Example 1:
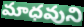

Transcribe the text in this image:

మాధవుని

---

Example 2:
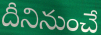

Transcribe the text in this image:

దీనినుంచే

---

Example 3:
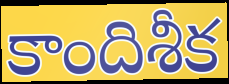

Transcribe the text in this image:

కాందిశీక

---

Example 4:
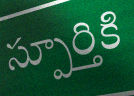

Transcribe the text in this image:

స్పూర్తికి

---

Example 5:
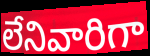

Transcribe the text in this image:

లేనివారిగా